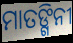
ମାତଙ୍ଗିନୀ